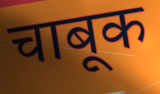
चाबूक